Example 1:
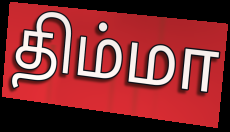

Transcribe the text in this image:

திம்மா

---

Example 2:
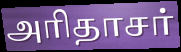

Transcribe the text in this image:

அரிதாசர்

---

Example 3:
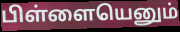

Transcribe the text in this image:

பிள்ளையெனும்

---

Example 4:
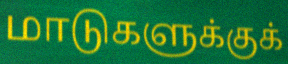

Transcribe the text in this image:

மாடுகளுக்குக்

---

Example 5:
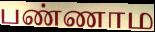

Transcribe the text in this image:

பண்ணாம